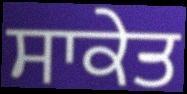
ਸਾਕੇਤ